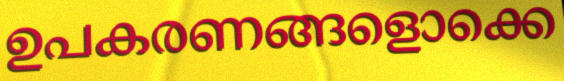
ഉപകരണങ്ങളൊക്കെ